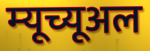
म्यूच्यूअल